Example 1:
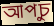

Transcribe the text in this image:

আপচু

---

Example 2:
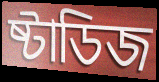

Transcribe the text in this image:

ষ্টাডিজ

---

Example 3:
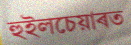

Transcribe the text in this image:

হুইলচেয়াৰত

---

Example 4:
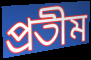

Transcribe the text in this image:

প্ৰতীম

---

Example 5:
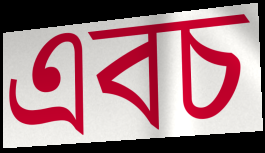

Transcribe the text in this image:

এবচ